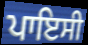
ਪਾਇਸੀ